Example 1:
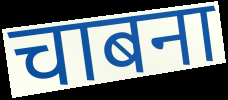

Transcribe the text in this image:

चाबना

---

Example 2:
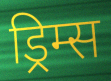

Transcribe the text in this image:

ड्रिम्स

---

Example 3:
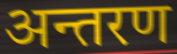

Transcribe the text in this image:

अन्तरण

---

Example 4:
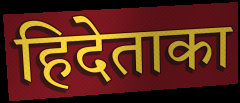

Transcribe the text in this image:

हिदेताका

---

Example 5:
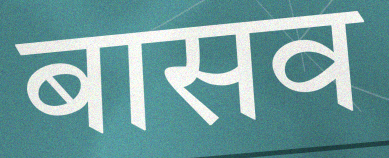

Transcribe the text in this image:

बासव